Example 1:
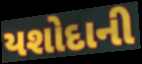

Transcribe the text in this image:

યશોદાની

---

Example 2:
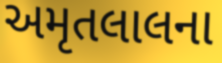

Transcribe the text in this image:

અમૃતલાલના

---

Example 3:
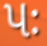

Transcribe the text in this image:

પઃ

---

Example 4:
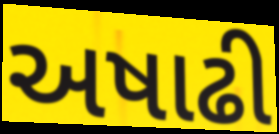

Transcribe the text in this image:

અષાઢી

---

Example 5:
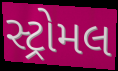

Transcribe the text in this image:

સ્ટ્રોમલ